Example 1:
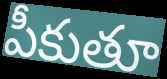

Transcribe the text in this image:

పీకుతూ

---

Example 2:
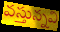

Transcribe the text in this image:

వస్తున్నవి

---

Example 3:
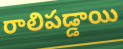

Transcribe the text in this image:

రాలిపడ్డాయి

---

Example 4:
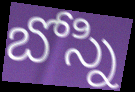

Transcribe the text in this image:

బోస్ని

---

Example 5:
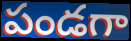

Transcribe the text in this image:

పండగా